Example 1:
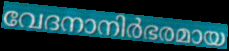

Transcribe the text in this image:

വേദനാനിർഭരമായ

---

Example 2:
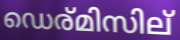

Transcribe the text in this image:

ഡെര്മിസില്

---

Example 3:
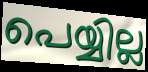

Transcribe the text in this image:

പെയ്യില്ല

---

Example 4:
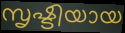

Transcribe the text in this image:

സൃഷ്ടിയായ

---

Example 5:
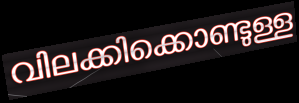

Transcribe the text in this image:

വിലക്കിക്കൊണ്ടുള്ള